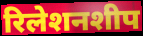
रिलेशनशीप